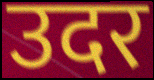
उदर